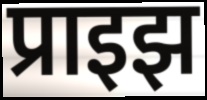
प्राइझ